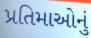
પ્રતિમાઓનું